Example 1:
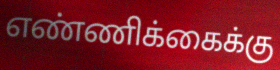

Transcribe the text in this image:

எண்ணிக்கைக்கு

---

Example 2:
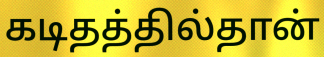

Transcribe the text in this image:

கடிதத்தில்தான்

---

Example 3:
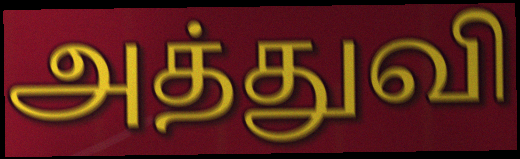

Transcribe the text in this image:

அத்துவி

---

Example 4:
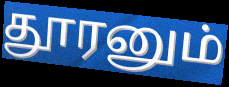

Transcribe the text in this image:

தூரனும்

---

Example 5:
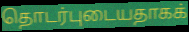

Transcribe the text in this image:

தொடர்புடையதாகக்